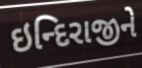
ઇન્દિરાજીને